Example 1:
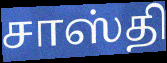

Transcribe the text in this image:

சாஸ்தி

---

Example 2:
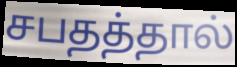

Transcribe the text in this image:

சபதத்தால்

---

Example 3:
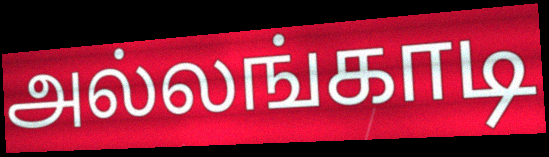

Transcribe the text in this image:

அல்லங்காடி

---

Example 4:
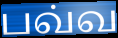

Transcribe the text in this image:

பவ்வ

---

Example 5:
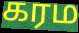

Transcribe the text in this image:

கரம